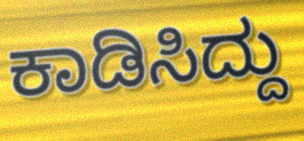
ಕಾಡಿಸಿದ್ದು